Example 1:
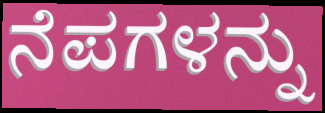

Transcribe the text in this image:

ನೆಪಗಳನ್ನು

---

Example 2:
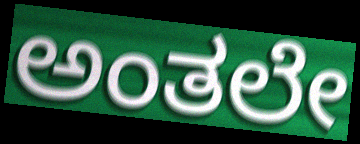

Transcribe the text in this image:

ಅಂತಲೇ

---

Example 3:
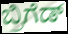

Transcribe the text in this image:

ಬ್ರಿಗೆಡ್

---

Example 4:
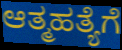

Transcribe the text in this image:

ಆತ್ಮಹತ್ಯೆಗೆ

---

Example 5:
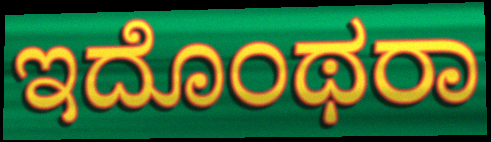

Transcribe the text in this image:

ಇದೊಂಥರಾ